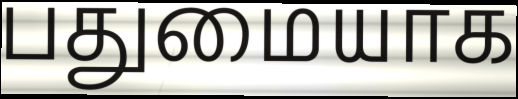
பதுமையாக